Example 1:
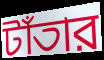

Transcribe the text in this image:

টাঁতার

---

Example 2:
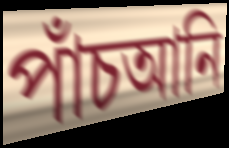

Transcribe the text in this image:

পাঁচআনি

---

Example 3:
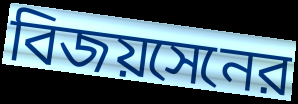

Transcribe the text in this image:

বিজয়সেনের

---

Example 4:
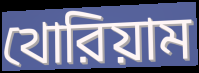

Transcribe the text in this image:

থোরিয়াম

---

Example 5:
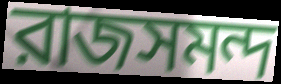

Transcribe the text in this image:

রাজসমন্দ